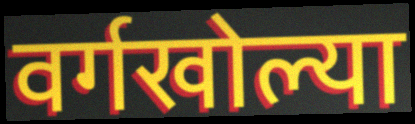
वर्गखोल्या